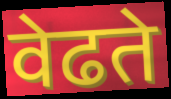
वेढते